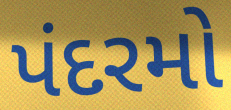
પંદરમો